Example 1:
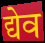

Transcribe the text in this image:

द्येव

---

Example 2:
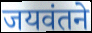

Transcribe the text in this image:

जयवंतने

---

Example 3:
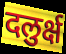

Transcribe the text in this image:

दलुर्क्ष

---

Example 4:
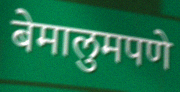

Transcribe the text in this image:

बेमालुमपणे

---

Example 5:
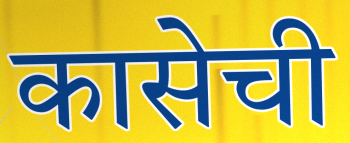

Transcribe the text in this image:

कासेची